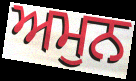
ਅਮੁਨ